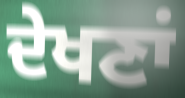
ਦੇਖਣਾਂ